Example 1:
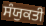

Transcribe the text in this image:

ਸੰਯੁਕਤੀ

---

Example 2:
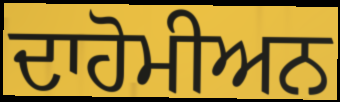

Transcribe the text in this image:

ਦਾਹੋਮੀਅਨ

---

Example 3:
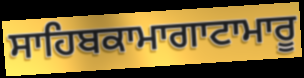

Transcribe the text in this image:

ਸਾਹਿਬਕਾਮਾਗਾਟਾਮਾਰੂ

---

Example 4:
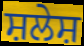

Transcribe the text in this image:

ਸ਼ਲੇਸ਼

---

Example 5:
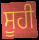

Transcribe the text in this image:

ਸੂਹੀ